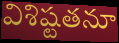
విశిష్టతనూ